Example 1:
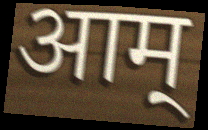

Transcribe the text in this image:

आम्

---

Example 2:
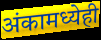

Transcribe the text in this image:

अंकामध्येही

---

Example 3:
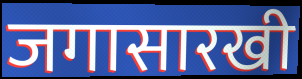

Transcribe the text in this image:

जगासारखी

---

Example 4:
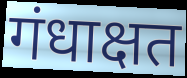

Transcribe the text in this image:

गंधाक्षत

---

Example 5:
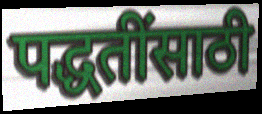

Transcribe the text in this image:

पद्धतींसाठी